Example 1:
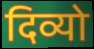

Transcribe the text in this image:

दिव्यो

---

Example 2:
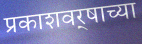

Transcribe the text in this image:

प्रकाशवर्षाच्या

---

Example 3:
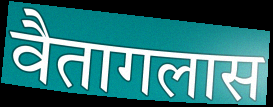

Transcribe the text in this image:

वैतागलास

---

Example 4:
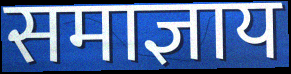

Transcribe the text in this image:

समाज्ञाय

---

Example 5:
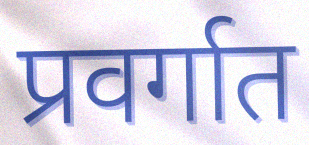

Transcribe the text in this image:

प्रवर्गात